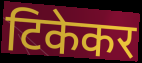
टिकेकर